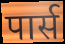
पार्स